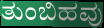
ತುಂಬಿಹವು